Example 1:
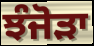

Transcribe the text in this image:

ਝੰਜੋੜਾ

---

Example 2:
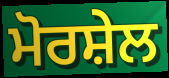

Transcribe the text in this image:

ਮੋਰਸ਼ੇਲ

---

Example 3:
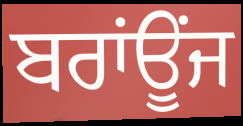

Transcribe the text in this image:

ਬਰਾਂਊਂਜ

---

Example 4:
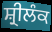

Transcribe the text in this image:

ਸ਼੍ਰੀਲੰਕ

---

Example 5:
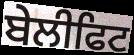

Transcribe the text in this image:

ਬੇਲੀਫਿਟ